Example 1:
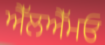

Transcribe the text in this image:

ਐੱਲਐੱਮਓ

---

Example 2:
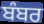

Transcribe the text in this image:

ਬੰਬਰ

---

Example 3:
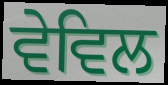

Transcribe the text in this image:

ਵੇਵਿਲ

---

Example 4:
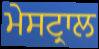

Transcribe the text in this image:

ਮੇਸਟ੍ਰਾਲ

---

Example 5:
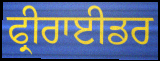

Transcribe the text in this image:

ਫ੍ਰੀਰਾਈਡਰ